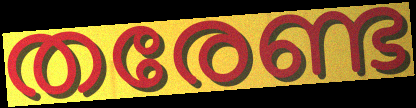
തരേണ്ട